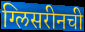
ग्लिसरीनची